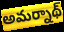
అమర్నాథ్